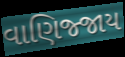
વાણિજ્જાય